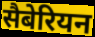
सैबेरियन